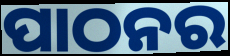
ପାଠନର